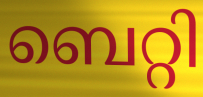
ബെറ്റി